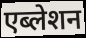
एब्लेशन